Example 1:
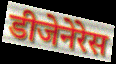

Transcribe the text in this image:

डीजेनेरेस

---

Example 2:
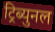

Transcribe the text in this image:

ट्रिब्युनल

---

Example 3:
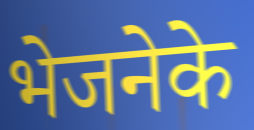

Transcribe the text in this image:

भेजनेके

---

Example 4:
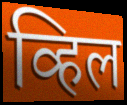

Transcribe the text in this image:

व्हिल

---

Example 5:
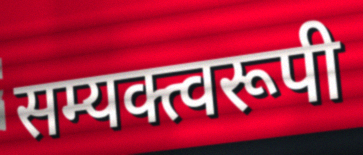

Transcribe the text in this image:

सम्यक्त्वरूपी